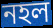
নহল